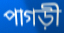
পাগড়ী